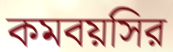
কমবয়সির